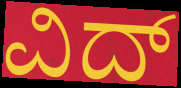
ವಿದ್